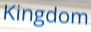
Kingdom